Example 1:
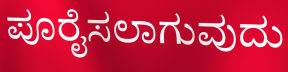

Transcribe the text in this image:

ಪೂರೈಸಲಾಗುವುದು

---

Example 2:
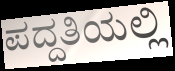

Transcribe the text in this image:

ಪದ್ದತಿಯಲ್ಲಿ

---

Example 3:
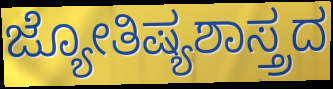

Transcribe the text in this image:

ಜ್ಯೋತಿಷ್ಯಶಾಸ್ತ್ರದ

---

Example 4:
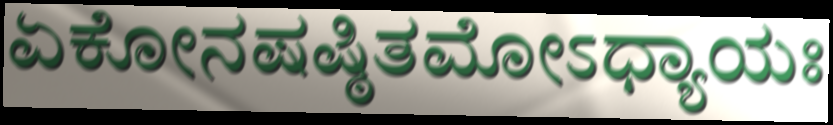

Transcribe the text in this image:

ಏಕೋನಷಷ್ಠಿತಮೋಽಧ್ಯಾಯಃ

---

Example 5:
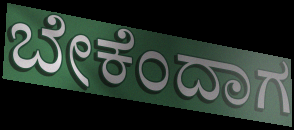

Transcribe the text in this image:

ಬೇಕೆಂದಾಗ